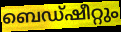
ബെഡ്ഷീറ്റും